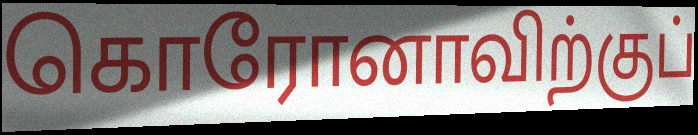
கொரோனாவிற்குப்